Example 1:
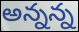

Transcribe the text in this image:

అన్నన్న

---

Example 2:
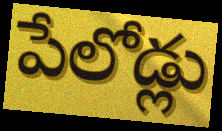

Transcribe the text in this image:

పేలోడ్లు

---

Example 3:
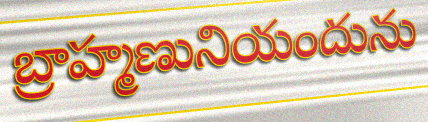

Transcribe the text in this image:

బ్రాహ్మణునియందును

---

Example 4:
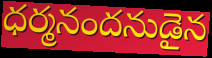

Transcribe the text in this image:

ధర్మనందనుడైన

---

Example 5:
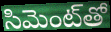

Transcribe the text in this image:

సిమెంట్‌తో